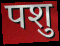
पशु